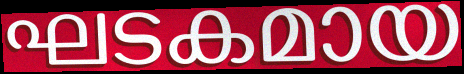
ഘടകമായ